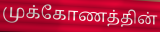
முக்கோணத்தின்